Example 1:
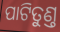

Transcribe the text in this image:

ପାଟିତୁଣ୍ତ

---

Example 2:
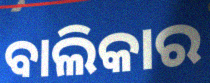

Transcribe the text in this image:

ବାଲିକାର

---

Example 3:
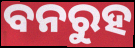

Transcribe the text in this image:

ବନରୁହ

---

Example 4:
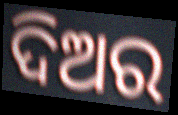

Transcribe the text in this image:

ଦିଅର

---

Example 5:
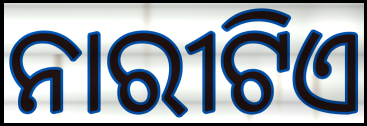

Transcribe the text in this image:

ନାରୀଟିଏ